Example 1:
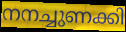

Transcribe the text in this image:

നനച്ചുണക്കി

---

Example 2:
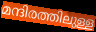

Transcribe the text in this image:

മന്ദിരത്തിലുള്ള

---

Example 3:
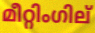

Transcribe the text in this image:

മീറ്റിംഗില്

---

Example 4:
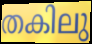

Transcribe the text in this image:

തകിലു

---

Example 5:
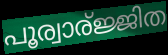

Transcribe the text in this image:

പൂര്വാര്ജ്ജിത